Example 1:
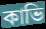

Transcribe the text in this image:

কাভি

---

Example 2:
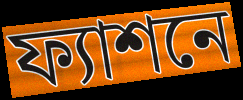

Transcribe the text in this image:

ফ্যাশনে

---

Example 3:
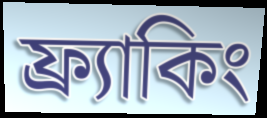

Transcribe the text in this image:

ফ্র্যাকিং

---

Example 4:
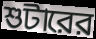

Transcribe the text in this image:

শুটারের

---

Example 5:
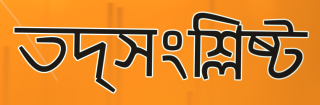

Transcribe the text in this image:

তদ্‌সংশ্লিষ্ট